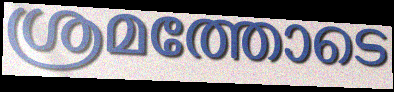
ശ്രമത്തോടെ